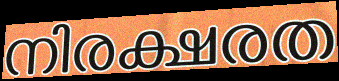
നിരക്ഷരത